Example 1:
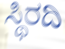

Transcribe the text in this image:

ಸ್ಥಿರದಿ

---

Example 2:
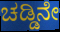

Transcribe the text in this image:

ಚಡ್ಡಿನೇ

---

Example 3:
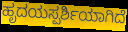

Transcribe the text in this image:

ಹೃದಯಸ್ಪರ್ಶಿಯಾಗಿದೆ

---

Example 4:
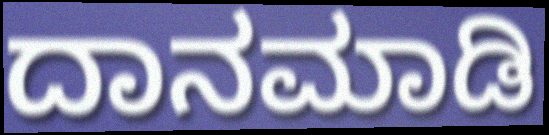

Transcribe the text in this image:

ದಾನಮಾಡಿ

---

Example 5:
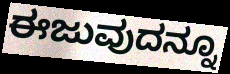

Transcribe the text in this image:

ಈಜುವುದನ್ನೂ